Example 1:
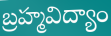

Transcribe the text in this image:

బ్రహ్మవిద్యాం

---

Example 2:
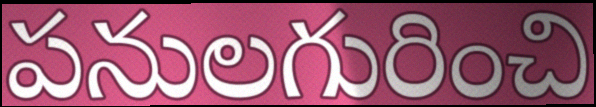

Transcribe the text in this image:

పనులగురించి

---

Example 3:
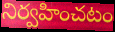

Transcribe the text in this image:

నిర్వహించటం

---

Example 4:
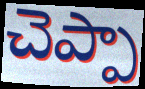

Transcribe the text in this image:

చెప్పా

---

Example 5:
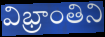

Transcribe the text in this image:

విభ్రాంతిని